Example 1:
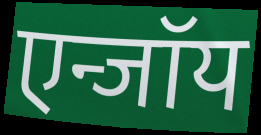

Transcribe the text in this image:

एन्जॉय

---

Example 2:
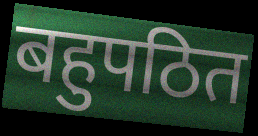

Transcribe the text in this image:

बहुपठित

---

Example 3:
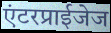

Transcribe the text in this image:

एंटरप्राईजेज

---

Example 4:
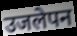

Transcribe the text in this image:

उजलेपन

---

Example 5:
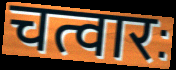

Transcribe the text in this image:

चत्वारः